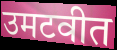
उमटवीत